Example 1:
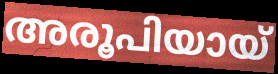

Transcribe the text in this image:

അരൂപിയായ്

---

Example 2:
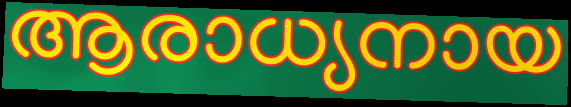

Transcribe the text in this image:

ആരാധ്യനായ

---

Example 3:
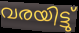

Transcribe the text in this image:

വരയിട്ടു്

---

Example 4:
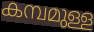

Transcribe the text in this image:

കമ്പമുള്ള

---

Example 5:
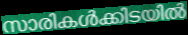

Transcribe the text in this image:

സാരികൾക്കിടയിൽ